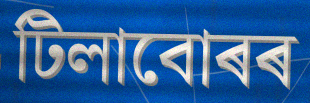
টিলাবোৰৰ